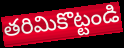
తరిమికొట్టండి